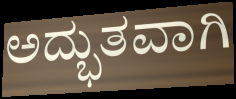
ಅದ್ಭುತವಾಗಿ